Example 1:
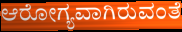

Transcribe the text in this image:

ಆರೋಗ್ಯವಾಗಿರುವಂತೆ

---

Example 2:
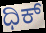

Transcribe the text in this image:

ಧಿಕ್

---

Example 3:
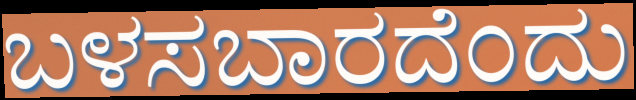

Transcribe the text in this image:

ಬಳಸಬಾರದೆಂದು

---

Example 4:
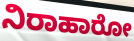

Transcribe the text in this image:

ನಿರಾಹಾರೋ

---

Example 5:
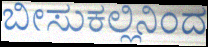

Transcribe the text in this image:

ಬೀಸುಕಲ್ಲಿನಿಂದ